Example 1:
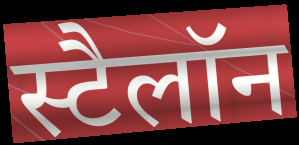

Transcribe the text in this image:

स्टैलॉन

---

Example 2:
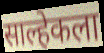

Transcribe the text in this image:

साल्हेकला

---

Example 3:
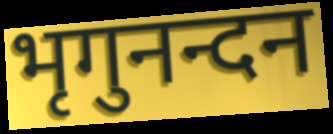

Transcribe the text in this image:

भृगुनन्दन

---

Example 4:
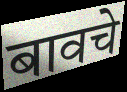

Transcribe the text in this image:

बावचे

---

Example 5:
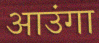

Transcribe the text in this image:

आउंगा